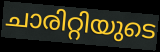
ചാരിറ്റിയുടെ